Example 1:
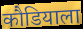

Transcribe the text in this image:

कौडियाला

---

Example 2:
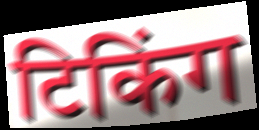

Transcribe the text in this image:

टिकिंग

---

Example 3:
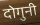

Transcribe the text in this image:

दोगुनी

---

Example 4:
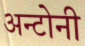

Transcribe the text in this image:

अन्टोनी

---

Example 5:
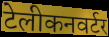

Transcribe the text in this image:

टेलीकनवर्टर